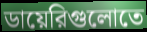
ডায়েরিগুলোতে